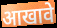
आखावे